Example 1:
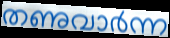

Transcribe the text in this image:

തണുവാർന്ന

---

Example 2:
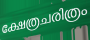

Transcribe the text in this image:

ക്ഷേത്രചരിത്രം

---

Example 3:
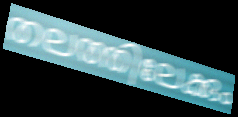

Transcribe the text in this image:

തലത്തിലേക്കും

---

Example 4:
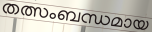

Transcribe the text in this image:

തത്സംബന്ധമായ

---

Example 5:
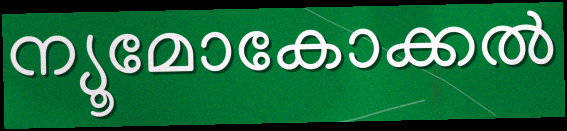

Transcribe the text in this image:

ന്യൂമോകോക്കൽ